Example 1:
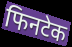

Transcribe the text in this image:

फिनटेक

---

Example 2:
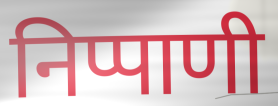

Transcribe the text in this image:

निप्पाणी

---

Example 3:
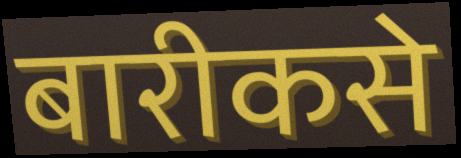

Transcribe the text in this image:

बारीकसे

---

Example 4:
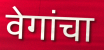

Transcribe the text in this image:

वेगांचा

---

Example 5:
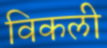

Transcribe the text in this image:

विकली